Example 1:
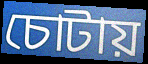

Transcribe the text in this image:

চোটায়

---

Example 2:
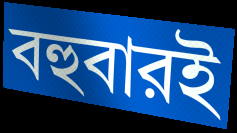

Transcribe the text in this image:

বহুবারই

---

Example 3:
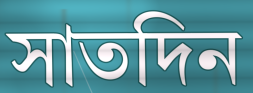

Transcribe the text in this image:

সাতদিন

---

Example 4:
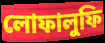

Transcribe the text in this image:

লোফালুফি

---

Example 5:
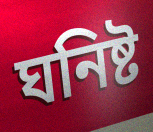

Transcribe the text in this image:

ঘনিষ্ট